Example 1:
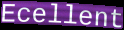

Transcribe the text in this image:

Ecellent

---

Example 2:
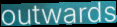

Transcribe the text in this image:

outwards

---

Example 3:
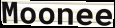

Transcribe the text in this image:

Moonee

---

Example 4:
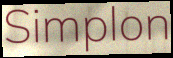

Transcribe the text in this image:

Simplon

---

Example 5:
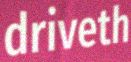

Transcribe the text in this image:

driveth